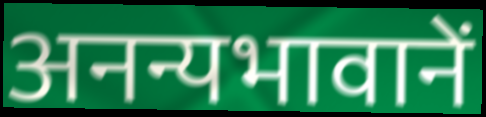
अनन्यभावानें